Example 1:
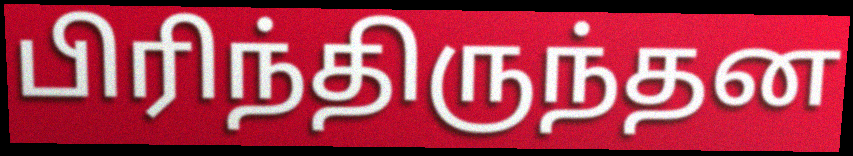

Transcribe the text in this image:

பிரிந்திருந்தன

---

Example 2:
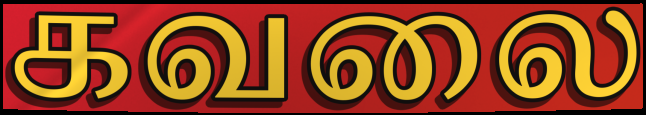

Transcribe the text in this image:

கவலை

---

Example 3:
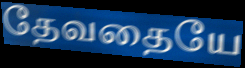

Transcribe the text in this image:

தேவதையே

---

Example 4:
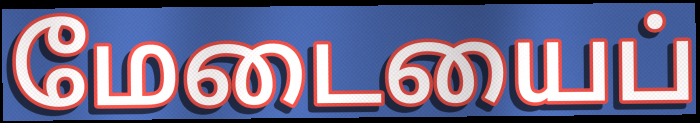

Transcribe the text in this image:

மேடையைப்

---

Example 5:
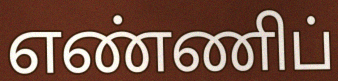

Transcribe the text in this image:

எண்ணிப்